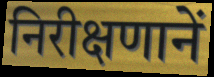
निरीक्षणानें